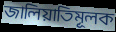
জালিয়াতিমূলক